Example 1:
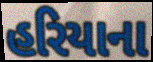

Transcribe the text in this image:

હરિયાના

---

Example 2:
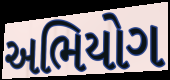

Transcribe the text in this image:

અભિયોગ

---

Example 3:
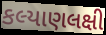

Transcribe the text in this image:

કલ્યાણલક્ષી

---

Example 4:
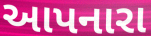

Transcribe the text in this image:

આપનારા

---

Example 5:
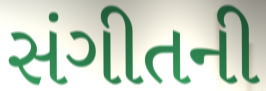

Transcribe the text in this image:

સંગીતની